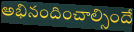
అభినందించాల్సిందే